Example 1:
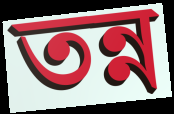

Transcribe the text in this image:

তন্ন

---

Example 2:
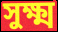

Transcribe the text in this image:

সুক্ষ্ম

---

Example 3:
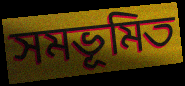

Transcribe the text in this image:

সমভূমিত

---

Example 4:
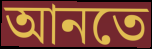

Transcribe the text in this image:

আনতে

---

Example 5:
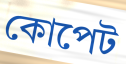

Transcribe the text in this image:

কোপেট